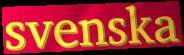
svenska